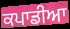
ਕਪਾਡੀਆ